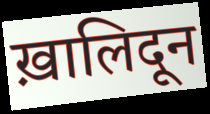
ख़ालिदून